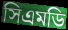
সিএমডি